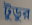
টুডুর